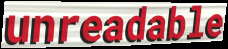
unreadable